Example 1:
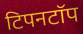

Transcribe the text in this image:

टिपनटॉप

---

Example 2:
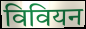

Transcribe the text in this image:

विवियन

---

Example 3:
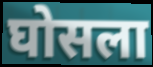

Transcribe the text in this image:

घोसला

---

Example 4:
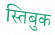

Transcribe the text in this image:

स्तिबुक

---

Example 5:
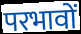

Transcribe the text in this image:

परभावों